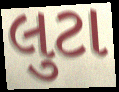
લુટા